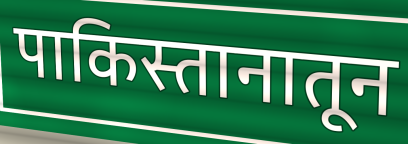
पाकिस्तानातून